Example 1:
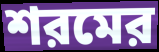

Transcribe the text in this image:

শরমের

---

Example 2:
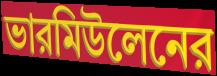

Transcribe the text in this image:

ভারমিউলেনের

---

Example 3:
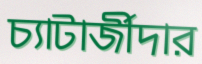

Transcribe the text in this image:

চ্যাটার্জীদার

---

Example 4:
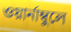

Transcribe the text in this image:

ওয়ার্নাম্বুলে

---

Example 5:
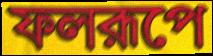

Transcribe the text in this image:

ফলরূপে